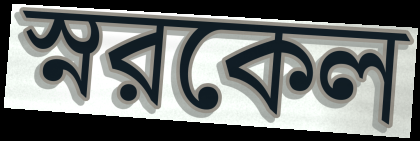
স্নরকেল